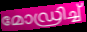
മോഡ്രിച്ച്